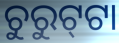
ଚୁରୁଟ୍‍ଟା